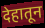
देहातून